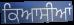
ਕਿਆਸੀਆਂ